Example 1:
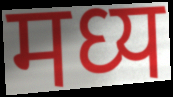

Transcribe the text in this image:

मध्‍य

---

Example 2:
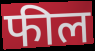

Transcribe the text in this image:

फील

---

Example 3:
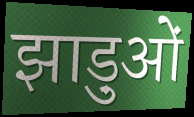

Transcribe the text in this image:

झाड़ुओं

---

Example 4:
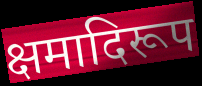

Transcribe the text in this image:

क्षमादिरूप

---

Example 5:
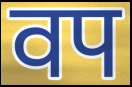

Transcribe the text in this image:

वप